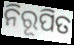
ନିରୂପିତ